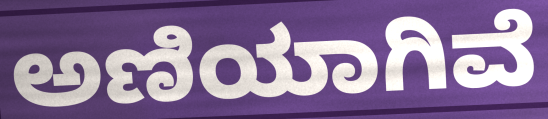
ಅಣಿಯಾಗಿವೆ